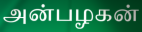
அன்பழகன்